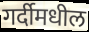
गर्दीमधील